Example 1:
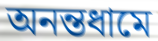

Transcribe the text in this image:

অনন্তধামে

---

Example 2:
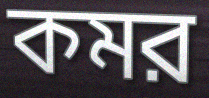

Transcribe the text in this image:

কমর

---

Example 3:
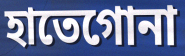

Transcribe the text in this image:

হাতেগোনা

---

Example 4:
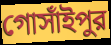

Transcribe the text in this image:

গোসাঁইপুর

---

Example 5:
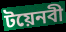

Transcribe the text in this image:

টয়েনবী